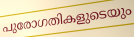
പുരോഗതികളുടെയും